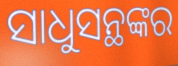
ସାଧୁସନ୍ଥଙ୍କର